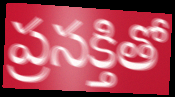
ప్రసక్తితో